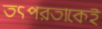
তৎপরতাকেই